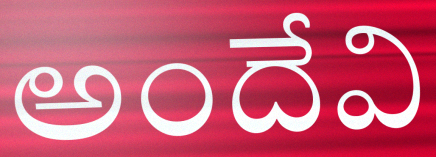
అందేవి